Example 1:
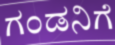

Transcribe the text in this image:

ಗಂಡನಿಗೆ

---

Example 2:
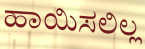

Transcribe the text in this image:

ಹಾಯಿಸಲಿಲ್ಲ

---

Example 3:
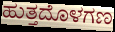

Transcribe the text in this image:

ಹುತ್ತದೊಳಗಣ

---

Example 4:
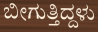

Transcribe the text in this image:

ಬೀಗುತ್ತಿದ್ದಳು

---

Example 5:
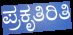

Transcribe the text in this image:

ಪ್ರಕೃತಿರಿತಿ